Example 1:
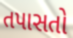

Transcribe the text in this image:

તપાસતો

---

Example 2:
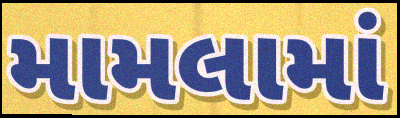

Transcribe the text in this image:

મામલામાં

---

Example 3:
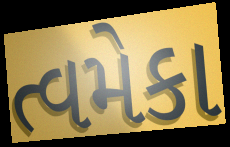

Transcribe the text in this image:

ત્વમેકા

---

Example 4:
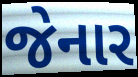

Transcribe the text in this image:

જેનાર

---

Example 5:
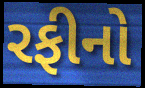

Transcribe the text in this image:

રફીનો